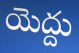
యెద్దు